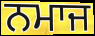
ਨਮਾਜ